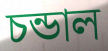
চন্ডাল